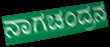
ನಾಗಚಂದ್ರನ